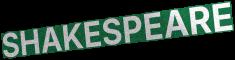
SHAKESPEARE